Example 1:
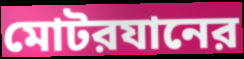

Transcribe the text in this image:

মোটরযানের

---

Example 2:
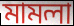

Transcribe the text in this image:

মামলা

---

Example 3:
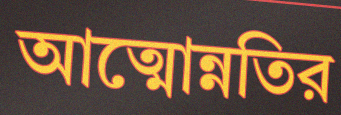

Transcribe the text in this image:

আত্মোন্নতির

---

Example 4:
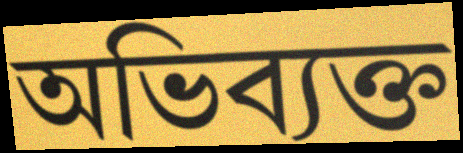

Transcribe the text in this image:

অভিব্যক্ত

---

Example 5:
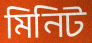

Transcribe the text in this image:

মিনিট